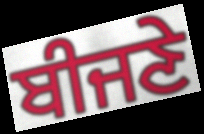
ਬੀਜਣੇ